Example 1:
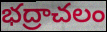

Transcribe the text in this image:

భద్రాచలం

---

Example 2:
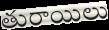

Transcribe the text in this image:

తురాయిలు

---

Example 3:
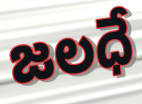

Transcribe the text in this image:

జలధే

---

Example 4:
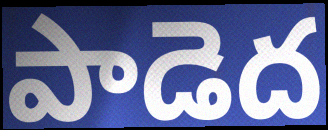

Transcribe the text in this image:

పాడెద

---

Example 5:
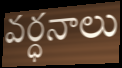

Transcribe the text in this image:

వర్ధనాలు